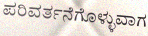
ಪರಿವರ್ತನೆಗೊಳ್ಳುವಾಗ